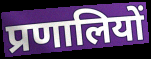
प्रणालियों